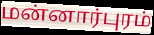
மன்னார்புரம்